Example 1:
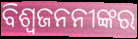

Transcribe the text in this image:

ବିଶ୍ୱଜନନୀଙ୍କର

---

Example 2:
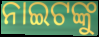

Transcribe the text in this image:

ନାଇଟଙ୍କୁ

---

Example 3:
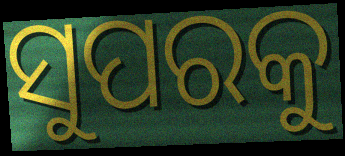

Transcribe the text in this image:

ସୁପରକୁ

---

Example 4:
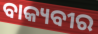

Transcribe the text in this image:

ବାକ୍ୟବୀର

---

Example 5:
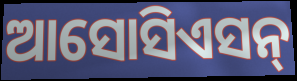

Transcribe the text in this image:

ଆସୋସିଏସନ୍